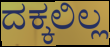
ದಕ್ಕಲಿಲ್ಲ